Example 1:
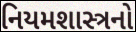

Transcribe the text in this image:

નિયમશાસ્ત્રનો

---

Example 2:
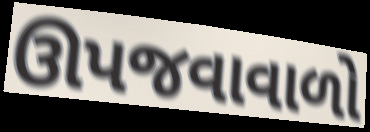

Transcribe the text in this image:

ઊપજવાવાળો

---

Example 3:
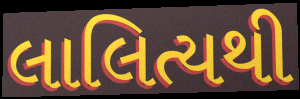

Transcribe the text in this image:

લાલિત્યથી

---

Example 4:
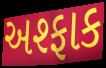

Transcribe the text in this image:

અશ્ફાક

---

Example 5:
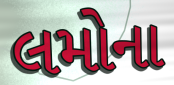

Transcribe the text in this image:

લમોના